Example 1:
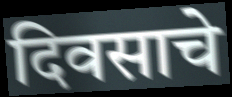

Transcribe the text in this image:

दिवसाचे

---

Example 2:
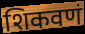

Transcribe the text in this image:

शिकवणं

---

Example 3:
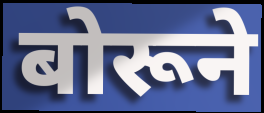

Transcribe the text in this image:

बोरूने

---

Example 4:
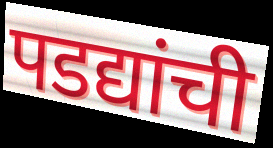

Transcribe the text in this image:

पडद्यांची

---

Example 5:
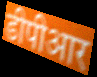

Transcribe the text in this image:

डीपीआर